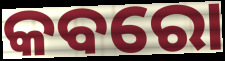
କବରୋ